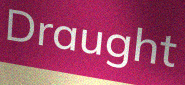
Draught